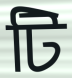
টি